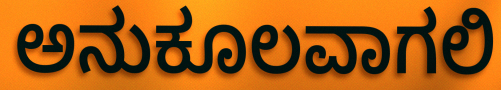
ಅನುಕೂಲವಾಗಲಿ